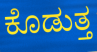
ಕೊಡುತ್ತ